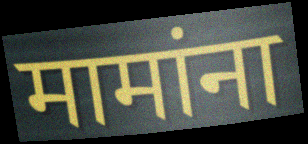
मामांना